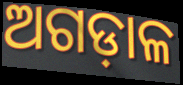
ଅଗଡ଼ାଳ